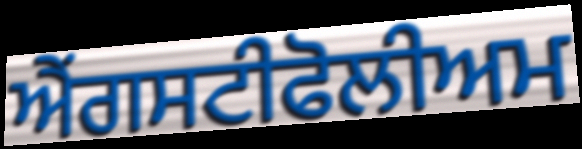
ਐਂਗਸਟੀਫੋਲੀਅਮ